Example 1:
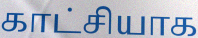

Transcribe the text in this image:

காட்சியாக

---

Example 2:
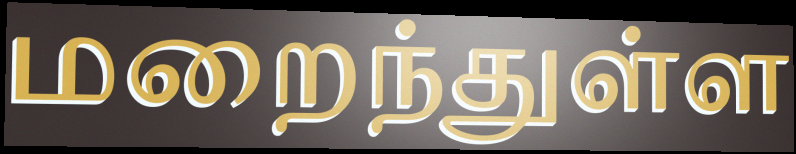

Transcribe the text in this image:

மறைந்துள்ள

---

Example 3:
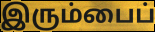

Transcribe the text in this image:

இரும்பைப்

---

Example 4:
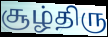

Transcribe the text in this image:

சூழ்திரு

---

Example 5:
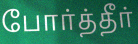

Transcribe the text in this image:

போர்த்தீர்